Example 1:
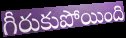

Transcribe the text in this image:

గీరుకుపోయింది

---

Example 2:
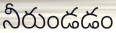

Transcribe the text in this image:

నీరుండడం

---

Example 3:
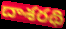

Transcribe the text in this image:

దాశరథి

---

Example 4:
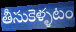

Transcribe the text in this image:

తీసుకెళ్ళటం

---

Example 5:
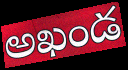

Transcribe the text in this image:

అఖండ